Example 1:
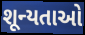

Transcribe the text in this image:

શૂન્યતાઓ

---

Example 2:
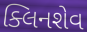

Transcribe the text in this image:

ક્લિનશેવ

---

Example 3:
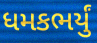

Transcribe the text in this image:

ધમકભર્યું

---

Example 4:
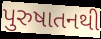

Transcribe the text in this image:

પુરુષાતનથી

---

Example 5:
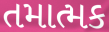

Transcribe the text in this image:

તમાત્મક